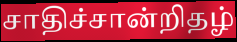
சாதிச்சான்றிதழ்